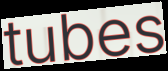
tubes